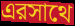
এরসাথে